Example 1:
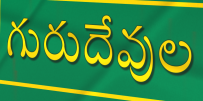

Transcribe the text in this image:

గురుదేవుల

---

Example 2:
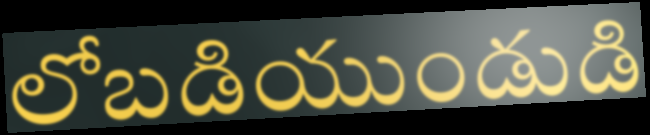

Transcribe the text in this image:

లోబడియుండుడి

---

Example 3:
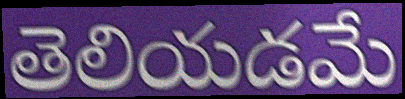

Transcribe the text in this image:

తెలియడమే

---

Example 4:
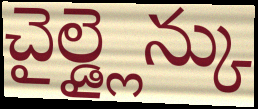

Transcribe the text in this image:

చైల్డ్లైన్కు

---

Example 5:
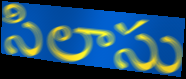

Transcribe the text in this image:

సిలాసు